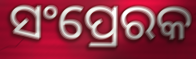
ସଂପ୍ରେରକ